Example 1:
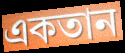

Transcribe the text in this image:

একতান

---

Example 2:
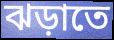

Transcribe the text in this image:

ঝড়াতে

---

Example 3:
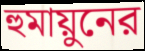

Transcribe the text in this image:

হুমায়ুনের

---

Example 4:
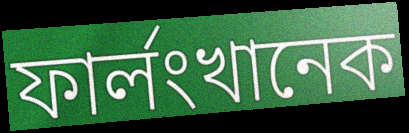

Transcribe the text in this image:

ফার্লংখানেক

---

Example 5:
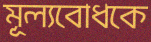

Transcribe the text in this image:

মূল্যবোধকে